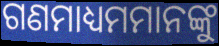
ଗଣମାଧ୍ୟମମାନଙ୍କୁ